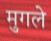
मुगले